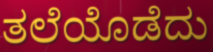
ತಲೆಯೊಡೆದು